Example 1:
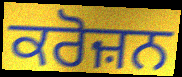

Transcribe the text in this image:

ਕਰੋਜ਼ਨ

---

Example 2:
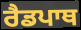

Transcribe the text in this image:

ਰੈਡਪਾਥ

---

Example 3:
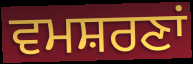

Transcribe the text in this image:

ਵਮਸ਼ਰਣਾਂ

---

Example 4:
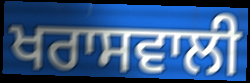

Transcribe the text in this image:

ਖਰਾਸਵਾਲੀ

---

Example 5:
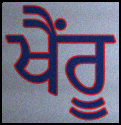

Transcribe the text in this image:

ਖੈਂਰੂ